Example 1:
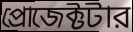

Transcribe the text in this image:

প্রোজেক্টটার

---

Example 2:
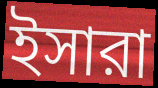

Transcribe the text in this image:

ইসারা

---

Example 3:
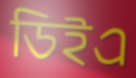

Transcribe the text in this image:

ডিইএ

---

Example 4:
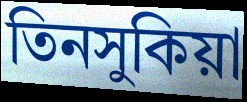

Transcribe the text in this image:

তিনসুকিয়া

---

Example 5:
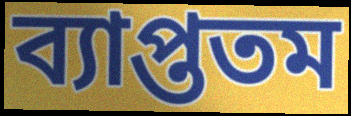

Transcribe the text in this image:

ব্যাপ্ততম